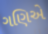
ગણિએ